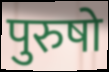
पुरुषो